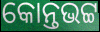
କୋନ୍ତଭଟ୍ଟ